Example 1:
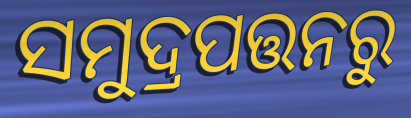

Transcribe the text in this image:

ସମୁଦ୍ରପତ୍ତନରୁ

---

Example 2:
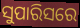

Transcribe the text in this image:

ସୁପାରିସରେ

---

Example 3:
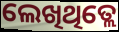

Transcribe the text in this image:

ଲେଖିଥିତ୍ଲେ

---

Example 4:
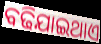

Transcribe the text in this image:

ବଢିଯାଇଥାଏ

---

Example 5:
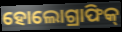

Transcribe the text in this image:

ହୋଲୋଗ୍ରାଫିକ୍